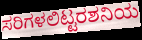
ಸರಿಗಳಲಿಟ್ಟರಶನಿಯ